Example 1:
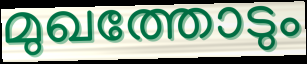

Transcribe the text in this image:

മുഖത്തോടും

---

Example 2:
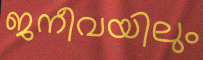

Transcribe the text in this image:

ജനീവയിലും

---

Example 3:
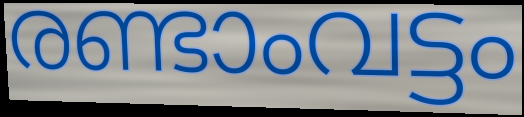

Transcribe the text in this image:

രണ്ടാംവട്ടം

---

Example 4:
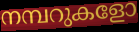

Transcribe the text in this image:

നമ്പറുകളോ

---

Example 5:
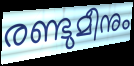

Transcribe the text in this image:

രണ്ടുമീനും